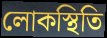
লোকস্থিতি